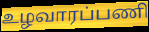
உழவாரப்பணி